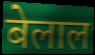
बेलाल